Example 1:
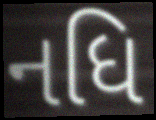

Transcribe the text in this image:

નધિ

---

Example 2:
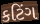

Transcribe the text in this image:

કટિંગ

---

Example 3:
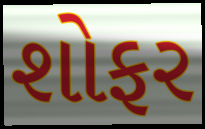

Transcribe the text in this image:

શોફર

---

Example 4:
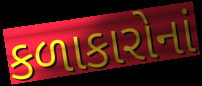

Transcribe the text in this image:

કળાકારોનાં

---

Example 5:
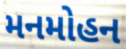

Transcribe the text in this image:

મનમોહન